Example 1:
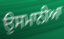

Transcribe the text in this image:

ਉਸਮਾਨੀਆ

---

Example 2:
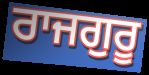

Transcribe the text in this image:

ਰਾਜਗੁਰੂ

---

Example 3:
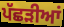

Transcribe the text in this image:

ਪੱਛੜੀਆਂ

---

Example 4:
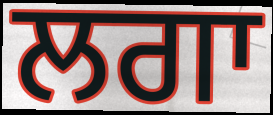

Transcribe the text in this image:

ਲਗਾ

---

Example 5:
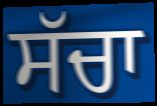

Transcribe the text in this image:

ਸੱਚਾ